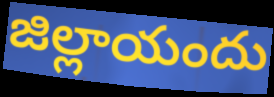
జిల్లాయందు